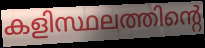
കളിസ്ഥലത്തിന്റെ